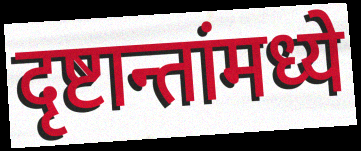
दृष्टान्तांमध्ये